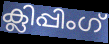
ക്ലിപ്പിംഗ്